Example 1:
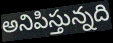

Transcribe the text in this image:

అనిపిస్తున్నది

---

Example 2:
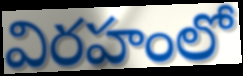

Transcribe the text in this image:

విరహంలో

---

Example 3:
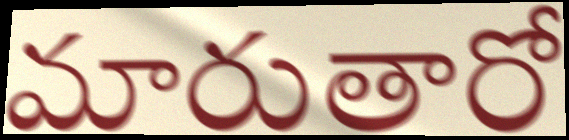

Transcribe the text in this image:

మారుతారో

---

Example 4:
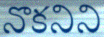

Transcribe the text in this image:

నొకనిని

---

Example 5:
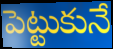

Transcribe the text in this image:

పెట్టుకునే